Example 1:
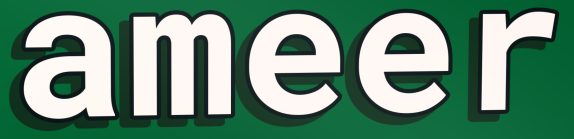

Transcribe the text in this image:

ameer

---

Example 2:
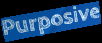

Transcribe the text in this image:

Purposive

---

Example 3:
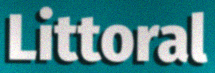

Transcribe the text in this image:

Littoral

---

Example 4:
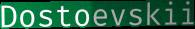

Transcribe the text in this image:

Dostoevskii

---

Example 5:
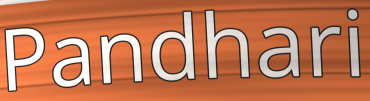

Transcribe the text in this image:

Pandhari